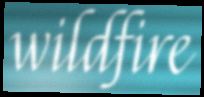
wildfire